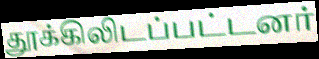
தூக்கிலிடப்பட்டனர்